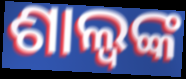
ଶାଲ୍ୱଙ୍କ